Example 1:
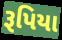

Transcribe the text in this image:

રૂપિયા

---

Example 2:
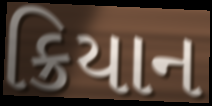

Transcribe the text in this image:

ક્રિયાન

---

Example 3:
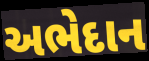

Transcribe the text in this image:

અભેદાન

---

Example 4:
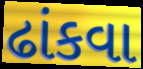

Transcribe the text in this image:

ઢાંકવા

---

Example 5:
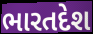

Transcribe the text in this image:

ભારતદેશ